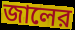
জালের